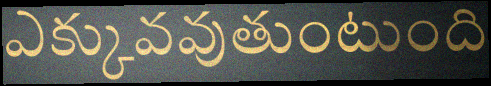
ఎక్కువవుతుంటుంది